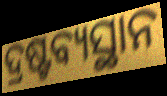
ଦ୍ରଷ୍ଟବ୍ୟସ୍ଥାନ